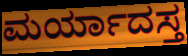
ಮರ್ಯಾದಸ್ತ